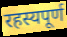
रहस्यपूर्ण